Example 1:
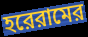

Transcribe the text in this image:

হরেরামের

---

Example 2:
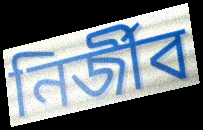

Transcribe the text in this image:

নির্জীব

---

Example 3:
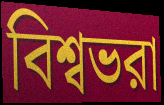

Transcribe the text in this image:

বিশ্বভরা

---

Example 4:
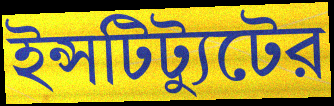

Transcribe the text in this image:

ইন্সটিট্যুটের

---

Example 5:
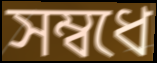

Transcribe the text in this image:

সম্বধে